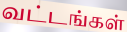
வட்டங்கள்